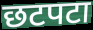
छटपटा